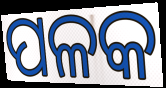
ପଳକ